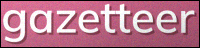
gazetteer